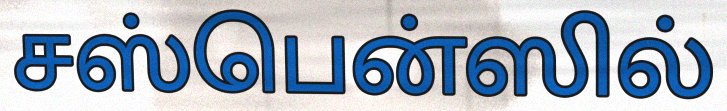
சஸ்பென்ஸில்